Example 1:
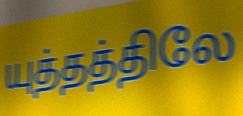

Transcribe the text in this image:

யுத்தத்திலே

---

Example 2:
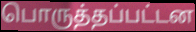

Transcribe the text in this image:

பொருத்தப்பட்டன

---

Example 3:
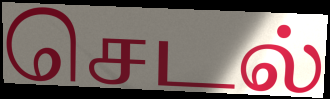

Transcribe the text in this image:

செடல்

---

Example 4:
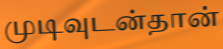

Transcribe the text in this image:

முடிவுடன்தான்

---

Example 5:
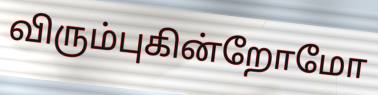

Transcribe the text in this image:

விரும்புகின்றோமோ